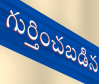
గుర్తించబడిన